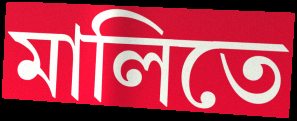
মালিতে